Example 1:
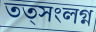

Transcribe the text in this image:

তত্সংলগ্ন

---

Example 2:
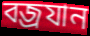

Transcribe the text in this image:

বজ্রযান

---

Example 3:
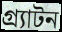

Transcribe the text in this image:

গ্র্যাটন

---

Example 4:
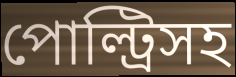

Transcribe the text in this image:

পোল্ট্রিসহ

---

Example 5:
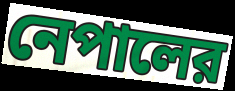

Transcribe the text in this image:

নেপালের